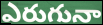
ఎరుగునా